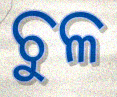
ଚୁଳ